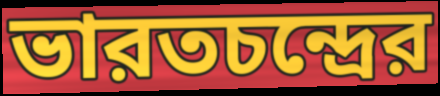
ভারতচন্দ্রের